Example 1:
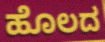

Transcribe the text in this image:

ಹೊಲದ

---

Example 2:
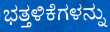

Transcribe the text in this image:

ಭತ್ತಳಿಕೆಗಳನ್ನು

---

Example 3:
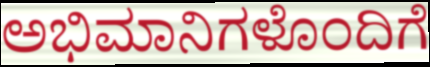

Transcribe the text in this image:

ಅಭಿಮಾನಿಗಳೊಂದಿಗೆ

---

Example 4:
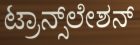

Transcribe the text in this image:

ಟ್ರಾನ್ಸ್‌ಲೇಶನ್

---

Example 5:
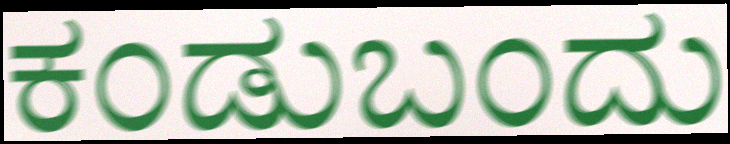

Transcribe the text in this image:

ಕಂಡುಬಂದು